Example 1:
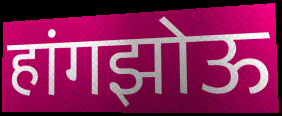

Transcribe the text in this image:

हांगझोऊ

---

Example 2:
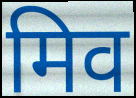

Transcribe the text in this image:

मिव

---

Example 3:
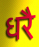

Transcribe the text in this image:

धरै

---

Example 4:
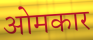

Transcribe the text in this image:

ओमकार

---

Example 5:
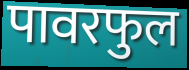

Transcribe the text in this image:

पावरफुल